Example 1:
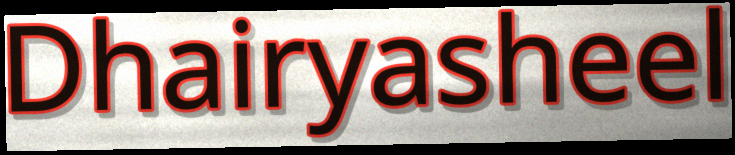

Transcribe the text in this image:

Dhairyasheel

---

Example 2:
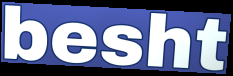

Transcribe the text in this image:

besht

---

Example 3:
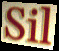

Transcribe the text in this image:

Sil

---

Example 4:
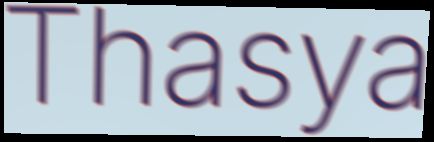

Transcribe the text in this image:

Thasya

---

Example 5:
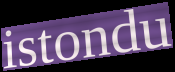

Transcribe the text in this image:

istondu